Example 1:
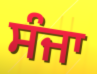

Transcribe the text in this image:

ਸੰਜਾ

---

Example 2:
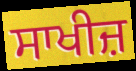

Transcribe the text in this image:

ਸਾਖੀਜ਼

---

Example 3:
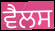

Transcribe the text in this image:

ਵੈਲਸ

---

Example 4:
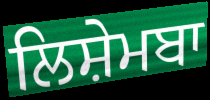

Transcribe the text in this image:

ਲਿਸ਼ੇਮਬਾ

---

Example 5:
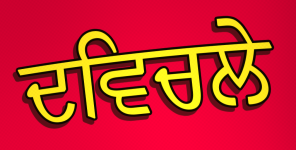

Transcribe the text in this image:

ਦਵਿਚਲੇ